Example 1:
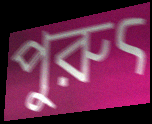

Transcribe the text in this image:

পুরুৎ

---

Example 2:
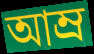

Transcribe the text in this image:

আম্র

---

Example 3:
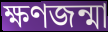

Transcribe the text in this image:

ক্ষণজন্মা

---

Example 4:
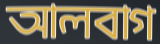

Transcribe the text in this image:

আলবাগ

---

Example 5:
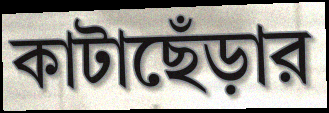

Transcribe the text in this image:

কাটাছেঁড়ার